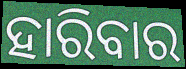
ହାରିବାର